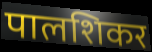
पालशिकर